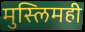
मुस्लिमही